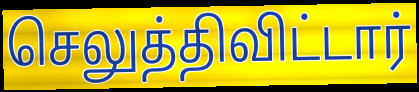
செலுத்திவிட்டார்